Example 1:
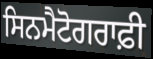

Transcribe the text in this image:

ਸਿਨਮੈਟੋਗਰਾਫ਼ੀ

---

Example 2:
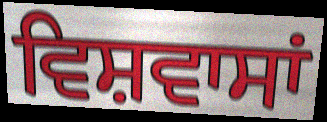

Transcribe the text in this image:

ਵਿਸ਼ਵਾਸਾਂ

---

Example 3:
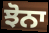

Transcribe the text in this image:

ਝੋਨਾ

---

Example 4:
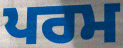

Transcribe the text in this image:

ਪਰਮ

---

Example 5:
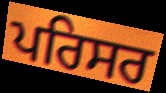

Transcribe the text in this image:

ਪਰਿਸਰ